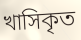
খাসিকৃত